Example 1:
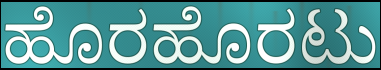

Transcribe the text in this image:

ಹೊರಹೊರಟು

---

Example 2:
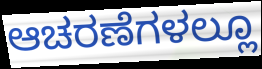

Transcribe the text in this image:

ಆಚರಣೆಗಳಲ್ಲೂ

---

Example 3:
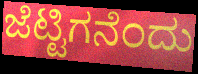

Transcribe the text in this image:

ಜೆಟ್ಟಿಗನೆಂದು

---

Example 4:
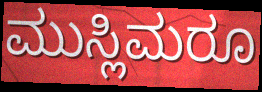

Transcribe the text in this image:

ಮುಸ್ಲಿಮರೂ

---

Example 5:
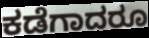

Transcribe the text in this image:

ಕಡೆಗಾದರೂ